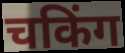
चकिंग